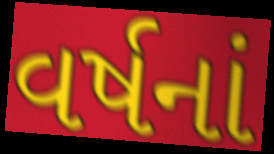
વર્ષનાં